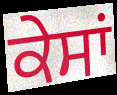
ਕੇਸਾਂ